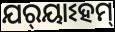
ଯର୍‌ୟାଽହମ୍